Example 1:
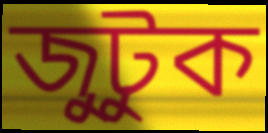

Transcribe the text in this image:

জুটুক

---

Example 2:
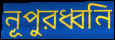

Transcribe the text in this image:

নূপুরধ্বনি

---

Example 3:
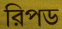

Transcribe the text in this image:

রিপড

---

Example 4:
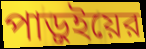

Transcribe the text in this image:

পাড়ুইয়ের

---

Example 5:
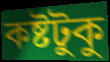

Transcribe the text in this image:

কষ্টটুকু